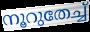
നൂറുതേച്ച്